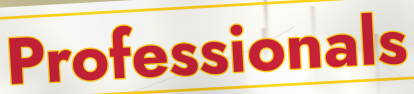
Professionals